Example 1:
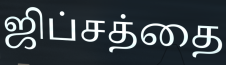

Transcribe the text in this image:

ஜிப்சத்தை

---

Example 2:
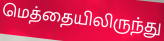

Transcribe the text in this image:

மெத்தையிலிருந்து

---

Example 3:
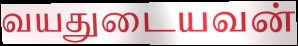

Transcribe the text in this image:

வயதுடையவன்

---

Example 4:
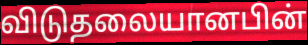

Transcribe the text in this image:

விடுதலையானபின்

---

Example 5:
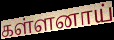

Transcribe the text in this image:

கள்ளனாய்